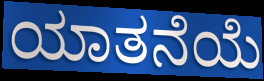
ಯಾತನೆಯೆ